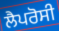
ਲੈਪਰੋਸੀ